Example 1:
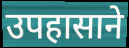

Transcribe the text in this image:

उपहासाने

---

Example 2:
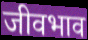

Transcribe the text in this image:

जीवभाव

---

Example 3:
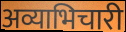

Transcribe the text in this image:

अव्याभिचारी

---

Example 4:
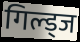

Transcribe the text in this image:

गिल्ड्ज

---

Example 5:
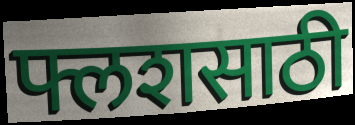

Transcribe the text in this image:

फ्लशसाठी